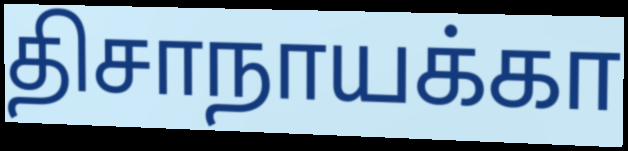
திசாநாயக்கா